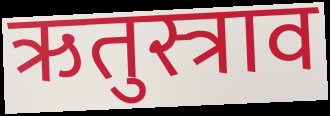
ऋतुस्त्राव